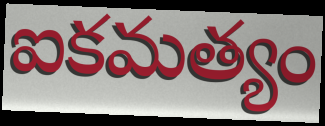
ఐకమత్యం